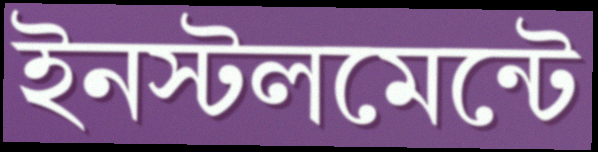
ইনস্টলমেন্টে